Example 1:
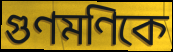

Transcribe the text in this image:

গুণমণিকে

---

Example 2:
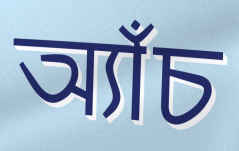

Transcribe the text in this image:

অ্যাঁচ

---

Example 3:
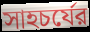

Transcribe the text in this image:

সাহচর্যের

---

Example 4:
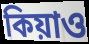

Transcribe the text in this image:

কিয়াও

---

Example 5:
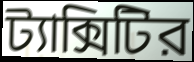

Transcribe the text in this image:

ট্যাক্সিটির